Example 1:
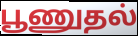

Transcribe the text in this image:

பூணுதல்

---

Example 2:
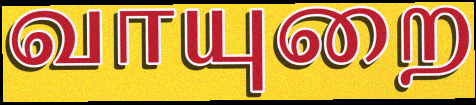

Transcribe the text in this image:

வாயுறை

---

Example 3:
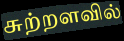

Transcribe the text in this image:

சுற்றளவில்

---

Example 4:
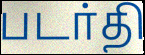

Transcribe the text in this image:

படர்தி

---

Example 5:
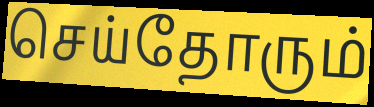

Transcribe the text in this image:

செய்தோரும்